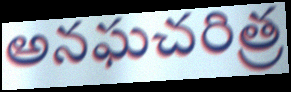
అనఘచరిత్ర